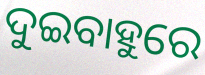
ଦୁଇବାହୁରେ